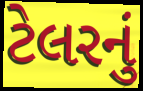
ટેલરનું